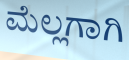
ಮೆಲ್ಲಗಾಗಿ